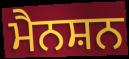
ਮੈਨਸ਼ਨ